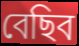
বেছিব